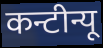
कन्टीन्यू